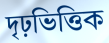
দৃঢ়ভিত্তিক